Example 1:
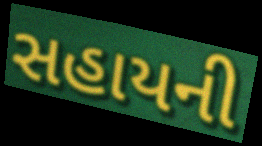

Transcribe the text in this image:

સહાયની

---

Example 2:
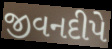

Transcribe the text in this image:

જીવનદીપે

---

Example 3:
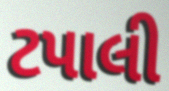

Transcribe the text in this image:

ટપાલી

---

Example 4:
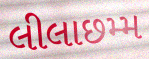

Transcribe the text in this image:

લીલાછમ્મ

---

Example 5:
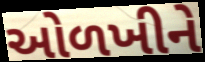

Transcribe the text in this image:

ઓળખીને